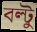
বল্টু